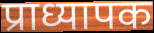
प्राध्यापक